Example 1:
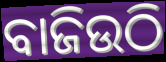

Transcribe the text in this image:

ବାଜିଉଠି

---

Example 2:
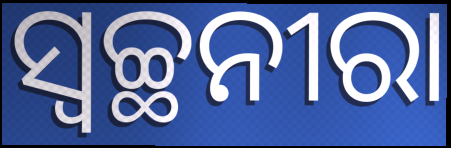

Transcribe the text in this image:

ସ୍ୱଚ୍ଛନୀରା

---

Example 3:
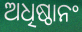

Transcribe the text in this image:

ଅଧିଷ୍ଠାନଂ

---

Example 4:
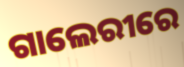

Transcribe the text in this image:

ଗାଲେରୀରେ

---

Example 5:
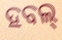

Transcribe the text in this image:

ହବଲ୍